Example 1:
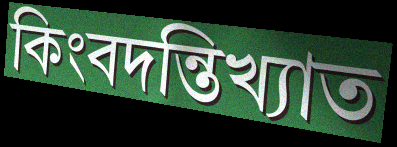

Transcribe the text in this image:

কিংবদন্তিখ্যাত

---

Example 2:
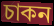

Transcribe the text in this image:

চাকন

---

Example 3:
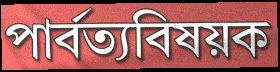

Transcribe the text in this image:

পার্বত্যবিষয়ক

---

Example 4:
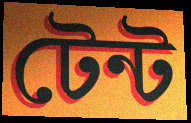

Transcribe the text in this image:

টেন্ট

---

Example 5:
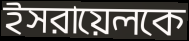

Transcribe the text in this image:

ইসরায়েলকে